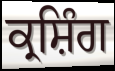
ਕ੍ਰਸ਼ਿੰਗ